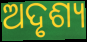
ଅଦୃଶ୍ୟ